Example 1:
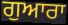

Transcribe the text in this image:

ਗੁਆਰਾ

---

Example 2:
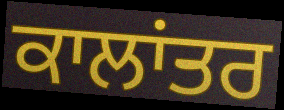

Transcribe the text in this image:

ਕਾਲਾਂਤਰ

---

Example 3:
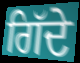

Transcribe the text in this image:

ਗਿੱਦੇ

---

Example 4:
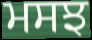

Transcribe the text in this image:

ਮਸਝ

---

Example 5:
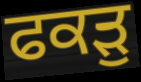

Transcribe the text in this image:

ਫਕੜੁ